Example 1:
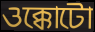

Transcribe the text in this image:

ওক্কোটো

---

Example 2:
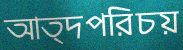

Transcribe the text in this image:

আত্দপরিচয়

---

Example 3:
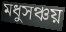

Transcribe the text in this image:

মধুসঞ্চয়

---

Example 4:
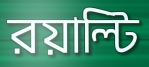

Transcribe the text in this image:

রয়াল্টি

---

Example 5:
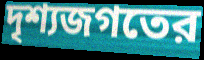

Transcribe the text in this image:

দৃশ্যজগতের